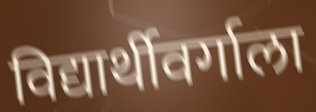
विद्यार्थीवर्गाला